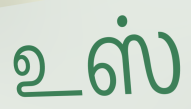
உஸ்